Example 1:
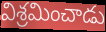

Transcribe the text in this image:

విశ్రమించాడు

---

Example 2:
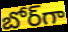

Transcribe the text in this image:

బోర్‌గా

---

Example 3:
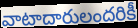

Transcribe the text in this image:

వాటాదారులందరికీ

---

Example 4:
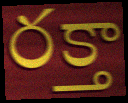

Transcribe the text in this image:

రక్తా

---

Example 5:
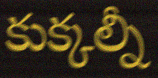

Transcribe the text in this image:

కుక్కల్నీ